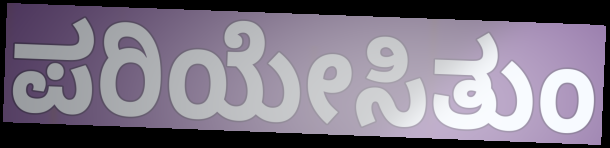
ಪರಿಯೇಸಿತುಂ